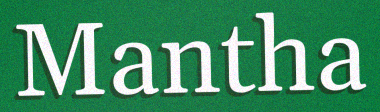
Mantha